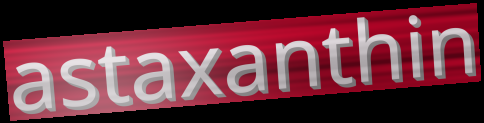
astaxanthin